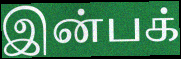
இன்பக்